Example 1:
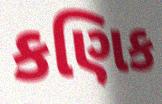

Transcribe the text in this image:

કણિક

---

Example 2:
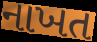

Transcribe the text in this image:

નાખત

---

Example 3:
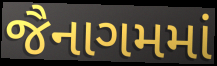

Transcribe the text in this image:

જૈનાગમમાં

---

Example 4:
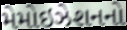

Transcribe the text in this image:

મેમોઇઝેશનનો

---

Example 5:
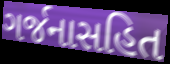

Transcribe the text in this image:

ગર્જનાસહિત